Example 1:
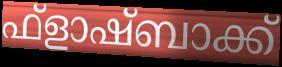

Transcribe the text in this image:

ഫ്ളാഷ്ബാക്ക്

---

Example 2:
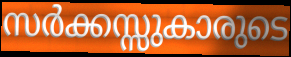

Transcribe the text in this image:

സർക്കസ്സുകാരുടെ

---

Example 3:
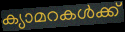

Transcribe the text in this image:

ക്യാമറകൾക്ക്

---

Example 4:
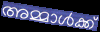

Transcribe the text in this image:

അമ്മാൾക്ക്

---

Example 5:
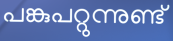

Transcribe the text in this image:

പങ്കുപറ്റുന്നുണ്ട്